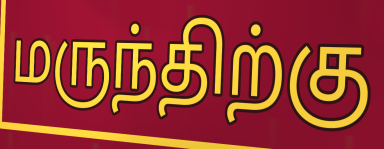
மருந்திற்கு